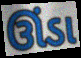
ઊંડા